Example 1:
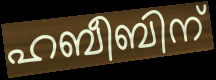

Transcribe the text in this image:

ഹബീബിന്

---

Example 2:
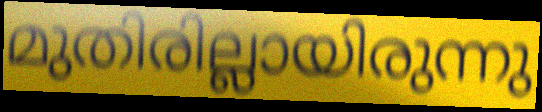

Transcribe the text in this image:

മുതിരില്ലായിരുന്നു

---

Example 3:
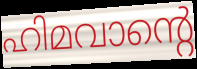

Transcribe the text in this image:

ഹിമവാന്റെ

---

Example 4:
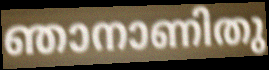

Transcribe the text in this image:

ഞാനാണിതു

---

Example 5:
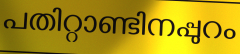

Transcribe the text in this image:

പതിറ്റാണ്ടിനപ്പുറം